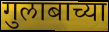
गुलाबाच्या